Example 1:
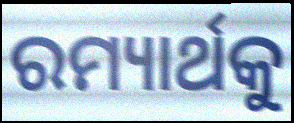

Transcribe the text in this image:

ରମ୍ୟାର୍ଥକୁ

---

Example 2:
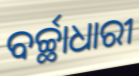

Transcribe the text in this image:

ବର୍ଚ୍ଛାଧାରୀ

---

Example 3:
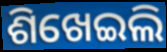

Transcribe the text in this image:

ଶିଖେଇଲି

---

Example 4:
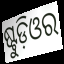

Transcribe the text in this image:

ଷ୍ଟୁଡ଼ିଓର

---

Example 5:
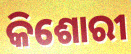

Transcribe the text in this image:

କିଶୋରୀ